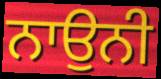
ਨਾਉਨੀ